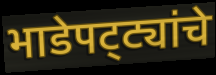
भाडेपट्ट्यांचे